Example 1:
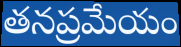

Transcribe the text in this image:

తనప్రమేయం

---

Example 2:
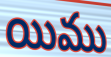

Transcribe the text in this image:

యిము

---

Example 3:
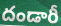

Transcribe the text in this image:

దండారీ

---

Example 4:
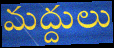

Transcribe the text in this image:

మద్దులు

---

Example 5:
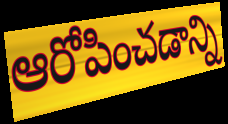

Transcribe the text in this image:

ఆరోపించడాన్ని